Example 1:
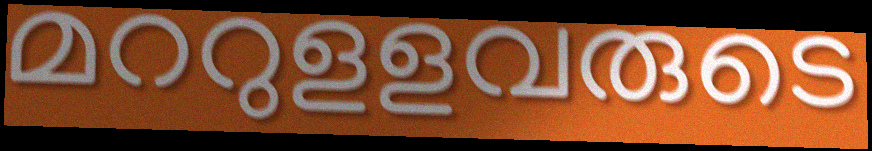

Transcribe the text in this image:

മററുളളവരുടെ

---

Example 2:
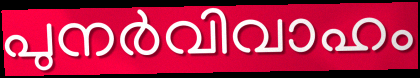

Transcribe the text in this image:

പുനർവിവാഹം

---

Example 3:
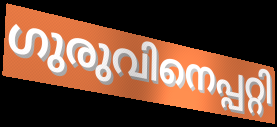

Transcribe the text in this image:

ഗുരുവിനെപ്പറ്റി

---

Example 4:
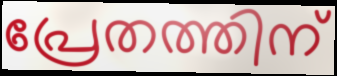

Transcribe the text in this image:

പ്രേതത്തിന്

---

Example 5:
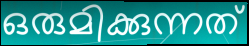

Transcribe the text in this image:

ഒരുമിക്കുന്നത്